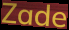
Zade